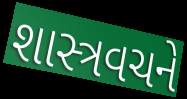
શાસ્ત્રવચને